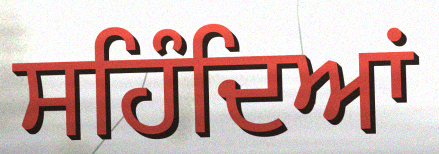
ਸਹਿੰਦਿਆਂ